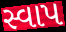
સ્વાપ